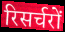
रिसर्चरों